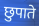
छुपाते